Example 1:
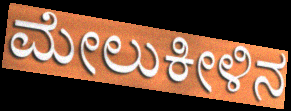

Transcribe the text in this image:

ಮೇಲುಕೀಳಿನ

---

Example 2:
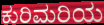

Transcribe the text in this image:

ಕುರಿಮರಿಯ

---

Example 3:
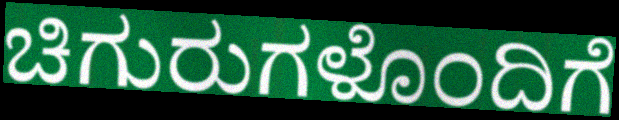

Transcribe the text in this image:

ಚಿಗುರುಗಳೊಂದಿಗೆ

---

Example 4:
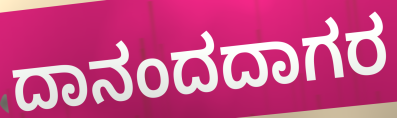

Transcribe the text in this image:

ದಾನಂದದಾಗರ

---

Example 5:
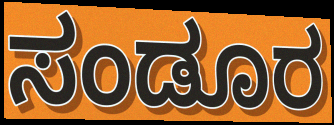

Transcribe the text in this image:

ಸಂಡೂರ